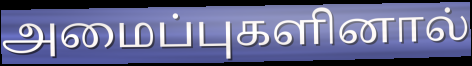
அமைப்புகளினால்